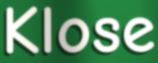
Klose